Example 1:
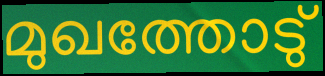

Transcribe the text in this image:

മുഖത്തോടു്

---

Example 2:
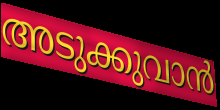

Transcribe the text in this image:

അടുക്കുവാൻ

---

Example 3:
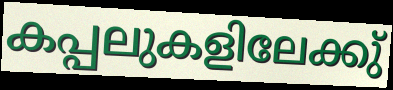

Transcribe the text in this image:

കപ്പലുകളിലേക്കു്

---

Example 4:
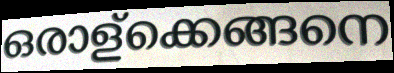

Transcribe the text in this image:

ഒരാള്ക്കെങ്ങനെ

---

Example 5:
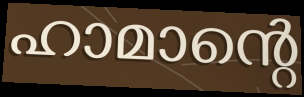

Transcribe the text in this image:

ഹാമാന്റെ